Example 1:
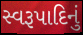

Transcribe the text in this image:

સ્વરૂપાદિનું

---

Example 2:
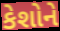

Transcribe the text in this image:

કેશોને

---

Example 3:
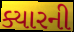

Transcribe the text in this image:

ક્યારની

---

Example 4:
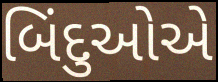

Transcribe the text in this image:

બિંદુઓએ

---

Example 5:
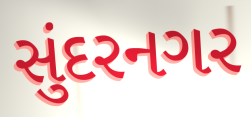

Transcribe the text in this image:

સુંદરનગર